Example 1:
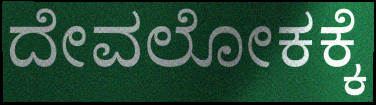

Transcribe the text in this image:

ದೇವಲೋಕಕ್ಕೆ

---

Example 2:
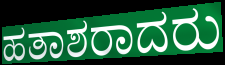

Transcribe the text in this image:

ಹತಾಶರಾದರು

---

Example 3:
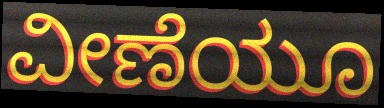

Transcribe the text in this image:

ವೀಣೆಯೂ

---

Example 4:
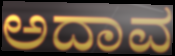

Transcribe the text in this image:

ಅದಾವ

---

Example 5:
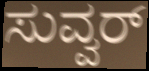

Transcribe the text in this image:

ಸುವ್ವರ್